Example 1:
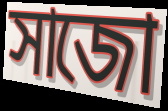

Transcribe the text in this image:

সাজো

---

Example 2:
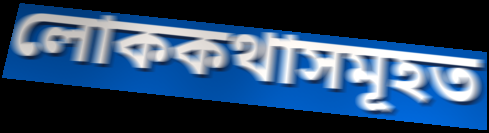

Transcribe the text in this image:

লোককথাসমূহত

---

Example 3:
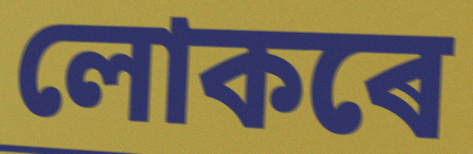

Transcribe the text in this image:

লোকৰে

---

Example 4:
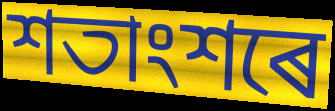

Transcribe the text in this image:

শতাংশৰে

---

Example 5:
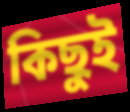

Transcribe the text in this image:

কিছুই